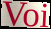
Voi